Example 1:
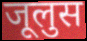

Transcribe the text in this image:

जूलुस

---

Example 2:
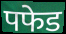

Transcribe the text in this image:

पफेड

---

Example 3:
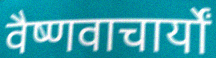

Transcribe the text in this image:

वैष्णवाचार्यों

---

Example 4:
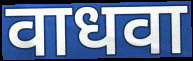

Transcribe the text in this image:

वाधवा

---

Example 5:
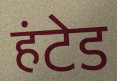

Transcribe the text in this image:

हंटेड